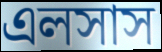
এলসাস